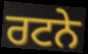
ਰਟਨੇ